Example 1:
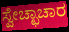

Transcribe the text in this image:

ಸ್ವೇಚ್ಛಾಚಾರ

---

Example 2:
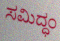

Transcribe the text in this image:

ಸಮಿದ್ಧಂ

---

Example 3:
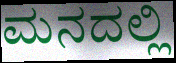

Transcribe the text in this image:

ಮನದಲ್ಲಿ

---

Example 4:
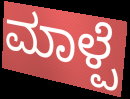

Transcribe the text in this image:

ಮಾಳ್ಪೆ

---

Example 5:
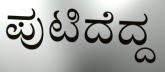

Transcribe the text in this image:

ಪುಟಿದೆದ್ದ